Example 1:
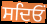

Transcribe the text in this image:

ਸਦਿਓਂ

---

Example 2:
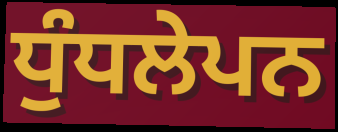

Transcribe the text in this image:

ਧੁੰਧਲੇਪਨ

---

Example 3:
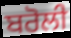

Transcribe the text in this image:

ਬਰੋਲੀ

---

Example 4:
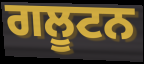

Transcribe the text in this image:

ਗਲੂਟਨ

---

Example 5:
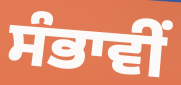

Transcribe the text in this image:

ਸੰਭਾਵੀਂ